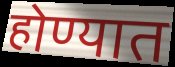
होण्यात